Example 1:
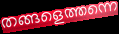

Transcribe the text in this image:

തങ്ങളെത്തന്നെ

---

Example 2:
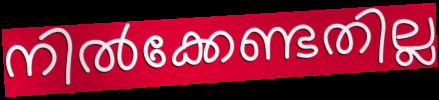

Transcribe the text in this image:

നിൽക്കേണ്ടതില്ല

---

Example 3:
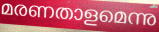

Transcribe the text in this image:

മരണതാളമെന്നു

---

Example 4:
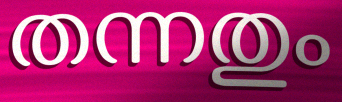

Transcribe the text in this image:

തന്നതും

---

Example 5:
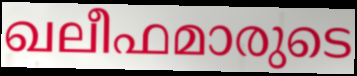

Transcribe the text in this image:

ഖലീഫമാരുടെ